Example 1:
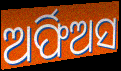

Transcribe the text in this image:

ଅର୍ଫିଅସ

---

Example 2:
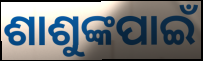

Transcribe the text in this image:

ଶାଶୁଙ୍କପାଇଁ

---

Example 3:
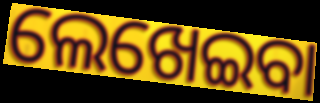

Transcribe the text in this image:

ଲେଖେଇବା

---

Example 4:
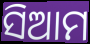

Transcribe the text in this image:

ସିଆମ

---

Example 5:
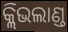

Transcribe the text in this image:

କ୍ଲିଭଲାଣ୍ଡ